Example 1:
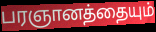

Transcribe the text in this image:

பரஞானத்தையும்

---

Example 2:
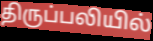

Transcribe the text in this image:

திருப்பலியில்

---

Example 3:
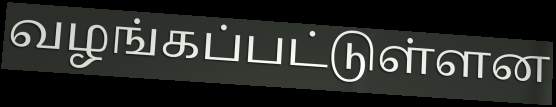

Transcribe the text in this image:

வழங்கப்பட்டுள்ளன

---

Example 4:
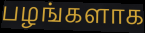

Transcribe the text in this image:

பழங்களாக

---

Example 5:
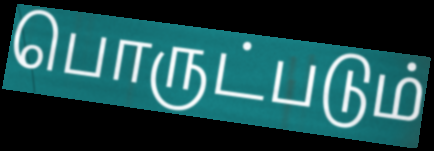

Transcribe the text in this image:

பொருட்படும்